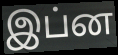
இப்ன